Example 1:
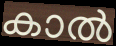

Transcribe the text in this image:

കാൽ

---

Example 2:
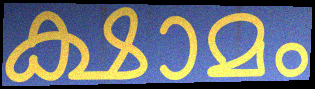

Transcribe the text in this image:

ക്ഷാമം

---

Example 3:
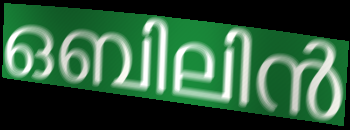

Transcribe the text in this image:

ഒബിലിൻ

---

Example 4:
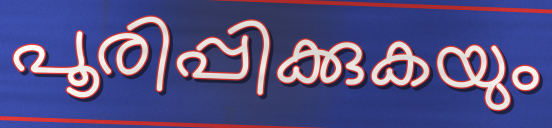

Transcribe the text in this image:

പൂരിപ്പിക്കുകയും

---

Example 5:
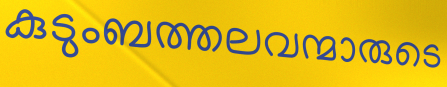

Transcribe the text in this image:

കുടുംബത്തലവന്മാരുടെ